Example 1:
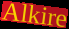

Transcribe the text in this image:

Alkire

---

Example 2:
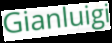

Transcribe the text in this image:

Gianluigi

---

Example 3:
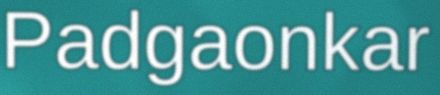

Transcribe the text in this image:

Padgaonkar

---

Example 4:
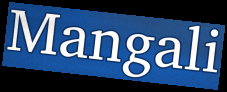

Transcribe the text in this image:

Mangali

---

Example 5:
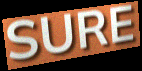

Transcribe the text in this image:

SURE